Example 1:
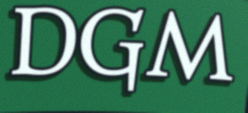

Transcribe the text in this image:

DGM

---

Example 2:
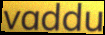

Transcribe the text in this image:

vaddu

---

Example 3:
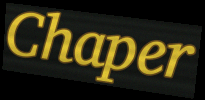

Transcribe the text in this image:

Chaper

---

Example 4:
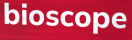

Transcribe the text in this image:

bioscope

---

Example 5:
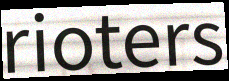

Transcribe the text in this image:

rioters